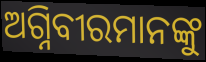
ଅଗ୍ନିବୀରମାନଙ୍କୁ